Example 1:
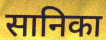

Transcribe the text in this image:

सानिका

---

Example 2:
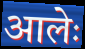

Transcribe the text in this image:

आलेः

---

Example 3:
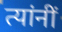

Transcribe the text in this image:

त्यांनीं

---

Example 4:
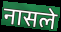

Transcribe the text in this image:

नासले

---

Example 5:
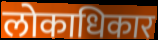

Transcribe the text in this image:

लोकाधिकार